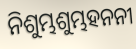
ନିଶୁମ୍ଭଶୁମ୍ଭହନନୀ